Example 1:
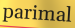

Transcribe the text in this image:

parimal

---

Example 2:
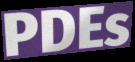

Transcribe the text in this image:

PDEs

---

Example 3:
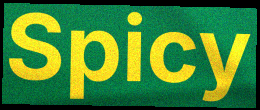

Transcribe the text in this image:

Spicy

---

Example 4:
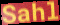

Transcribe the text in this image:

Sahl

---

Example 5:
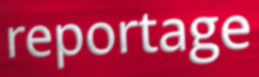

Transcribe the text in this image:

reportage